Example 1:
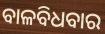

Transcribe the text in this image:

ବାଳବିଧବାର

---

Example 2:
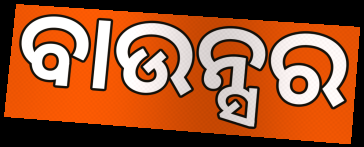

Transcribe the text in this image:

ବାଉନ୍ସର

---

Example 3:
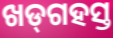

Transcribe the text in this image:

ଖଡ୍‌ଗହସ୍ତ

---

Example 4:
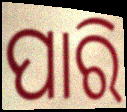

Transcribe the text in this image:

ପାରି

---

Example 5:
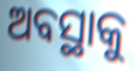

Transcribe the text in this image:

ଅବସ୍ଥାକୁ